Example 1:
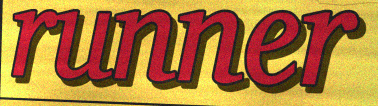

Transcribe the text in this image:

runner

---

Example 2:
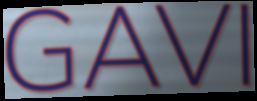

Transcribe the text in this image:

GAVI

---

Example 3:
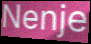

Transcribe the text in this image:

Nenje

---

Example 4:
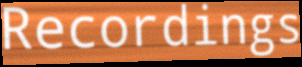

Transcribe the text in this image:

Recordings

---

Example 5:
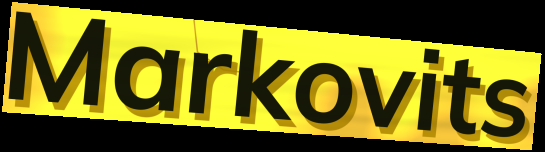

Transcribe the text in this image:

Markovits